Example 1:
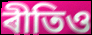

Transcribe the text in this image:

ৰীতিও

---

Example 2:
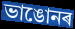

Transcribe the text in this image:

ভাঙোনৰ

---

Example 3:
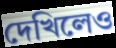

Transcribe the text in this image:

দেখিলেও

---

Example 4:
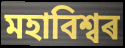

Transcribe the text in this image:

মহাবিশ্বৰ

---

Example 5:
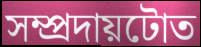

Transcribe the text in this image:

সম্প্ৰদায়টোত